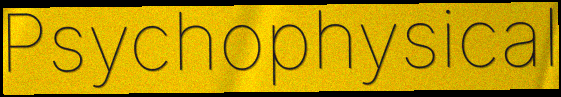
Psychophysical